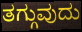
ತಗ್ಗುವುದು